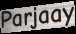
Parjaay